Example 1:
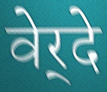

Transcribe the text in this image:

वेर्दे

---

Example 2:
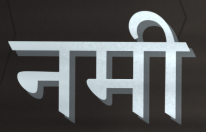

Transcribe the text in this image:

नमी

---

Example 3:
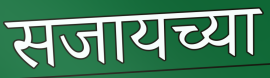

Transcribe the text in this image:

सजायच्या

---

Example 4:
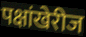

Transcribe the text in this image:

पक्षांखेरीज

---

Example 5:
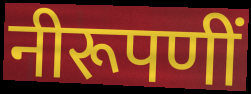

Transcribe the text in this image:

नीरूपणीं